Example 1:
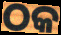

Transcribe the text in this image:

ଠକ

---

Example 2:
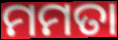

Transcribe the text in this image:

ମମତା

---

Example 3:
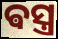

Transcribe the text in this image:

ଵସ୍ତ୍ର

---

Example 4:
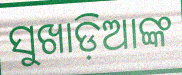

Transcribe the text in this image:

ସୁଖାଡ଼ିଆଙ୍କ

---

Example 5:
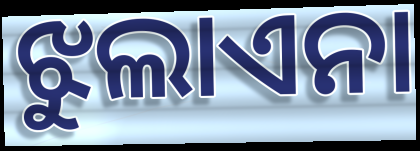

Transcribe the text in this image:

ଝୁଲାଏନା